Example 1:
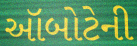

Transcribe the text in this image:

ઑબોટેની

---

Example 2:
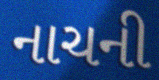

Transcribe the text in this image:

નાચની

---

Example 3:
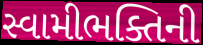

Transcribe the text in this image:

સ્વામીભક્તિની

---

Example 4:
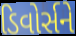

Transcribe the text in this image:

ડિવોર્સને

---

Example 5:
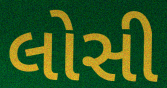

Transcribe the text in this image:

લોસી